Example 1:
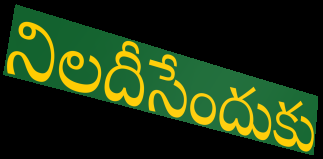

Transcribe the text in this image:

నిలదీసేందుకు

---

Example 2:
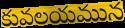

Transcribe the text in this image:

కువలయమున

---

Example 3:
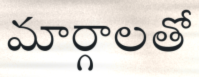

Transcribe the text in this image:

మార్గాలతో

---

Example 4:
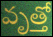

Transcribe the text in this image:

వృత్తో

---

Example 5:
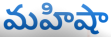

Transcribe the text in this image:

మహిషా